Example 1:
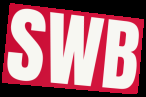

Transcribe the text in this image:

SWB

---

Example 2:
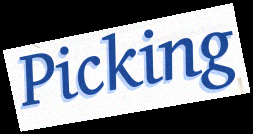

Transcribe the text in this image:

Picking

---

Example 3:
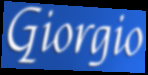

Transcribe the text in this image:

Giorgio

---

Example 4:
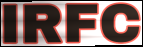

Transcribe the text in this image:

IRFC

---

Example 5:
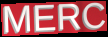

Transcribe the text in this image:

MERC